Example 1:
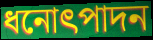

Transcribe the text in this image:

ধনোৎপাদন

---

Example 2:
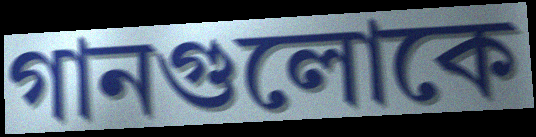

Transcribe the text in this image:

গানগুলোকে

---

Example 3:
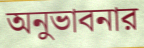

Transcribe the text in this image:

অনুভাবনার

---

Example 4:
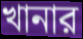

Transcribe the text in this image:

খানার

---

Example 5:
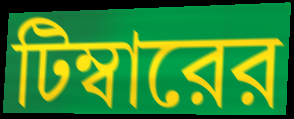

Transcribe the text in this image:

টিম্বারের